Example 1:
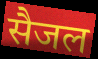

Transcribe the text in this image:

सैजल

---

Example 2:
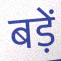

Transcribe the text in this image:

बड़ें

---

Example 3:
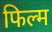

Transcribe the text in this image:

फिल्म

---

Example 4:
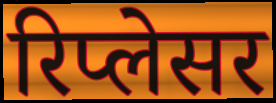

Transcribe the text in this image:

रिप्लेसर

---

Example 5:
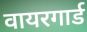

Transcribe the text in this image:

वायरगार्ड